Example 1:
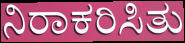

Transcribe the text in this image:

ನಿರಾಕರಿಸಿತು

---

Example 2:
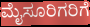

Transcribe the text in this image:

ಮೈಸೂರಿಗರಿಗೆ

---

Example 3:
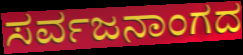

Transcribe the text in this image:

ಸರ್ವಜನಾಂಗದ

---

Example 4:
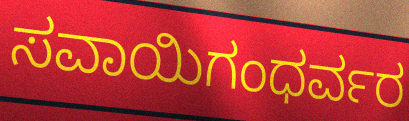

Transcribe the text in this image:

ಸವಾಯಿಗಂಧರ್ವರ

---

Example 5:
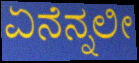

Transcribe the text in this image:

ಏನೆನ್ನಲೀ